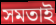
সমতাই